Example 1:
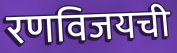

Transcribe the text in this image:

रणविजयची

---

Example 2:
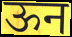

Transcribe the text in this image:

ऊन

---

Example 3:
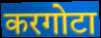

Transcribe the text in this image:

करगोटा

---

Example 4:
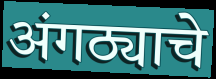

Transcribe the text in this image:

अंगठ्याचे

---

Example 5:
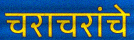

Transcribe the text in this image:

चराचरांचे